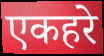
एकहरे